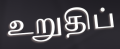
உறுதிப்